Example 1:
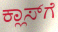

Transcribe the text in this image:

ಕ್ಲಾಸ್‍ಗೆ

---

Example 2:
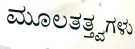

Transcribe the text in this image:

ಮೂಲತತ್ತ್ವಗಳು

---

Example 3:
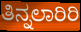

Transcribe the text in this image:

ತಿನ್ನಲಾರಿರಿ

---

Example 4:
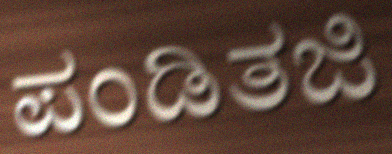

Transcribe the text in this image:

ಪಂಡಿತಜಿ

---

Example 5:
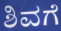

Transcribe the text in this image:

ಶಿವಗೆ